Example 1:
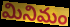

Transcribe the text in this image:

మినిమం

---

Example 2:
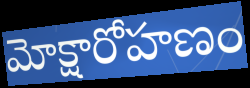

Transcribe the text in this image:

మోక్షారోహణం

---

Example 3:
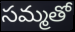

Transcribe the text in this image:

సమ్మతో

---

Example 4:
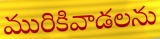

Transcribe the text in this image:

మురికివాడలను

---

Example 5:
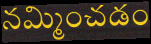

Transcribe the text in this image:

నమ్మించడం